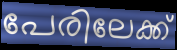
പേരിലേക്ക്